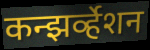
कन्झर्व्हेशन